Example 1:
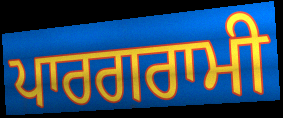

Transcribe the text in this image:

ਪਾਰਗਰਾਮੀ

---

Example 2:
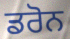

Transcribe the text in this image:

ਡਰੋਨ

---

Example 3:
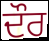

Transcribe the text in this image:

ਦੌਰ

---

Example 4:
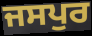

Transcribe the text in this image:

ਜਸਪੁਰ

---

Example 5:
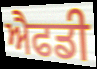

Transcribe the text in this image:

ਐਫਡੀ